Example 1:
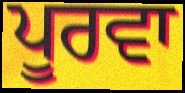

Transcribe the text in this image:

ਪੂਰਵਾ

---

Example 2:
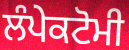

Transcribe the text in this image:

ਲੰਪੇਕਟੋਮੀ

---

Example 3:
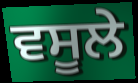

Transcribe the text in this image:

ਵਸੂਲੇ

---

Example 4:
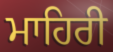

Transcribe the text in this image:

ਮਾਹਿਰੀ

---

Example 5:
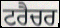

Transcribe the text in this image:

ਟਰੈਚਰ